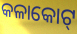
କଳାକୋଟ୍